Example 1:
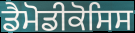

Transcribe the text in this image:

ਡੈਮੋਡੀਕੋਸਿਸ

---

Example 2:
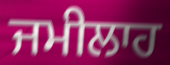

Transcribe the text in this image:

ਜਮੀਲਾਹ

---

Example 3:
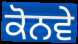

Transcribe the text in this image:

ਕੋਨਵੇ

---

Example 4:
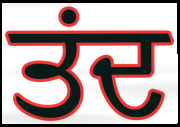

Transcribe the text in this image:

ਤਂਦ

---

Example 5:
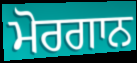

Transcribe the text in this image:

ਮੋਰਗਾਨ